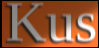
Kus